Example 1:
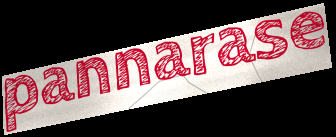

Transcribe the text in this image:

pannarase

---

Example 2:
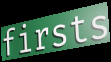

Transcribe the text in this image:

firsts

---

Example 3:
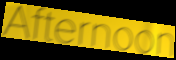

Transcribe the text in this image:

Afternoon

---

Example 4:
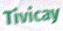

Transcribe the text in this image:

Tivicay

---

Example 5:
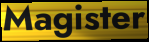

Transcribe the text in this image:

Magister